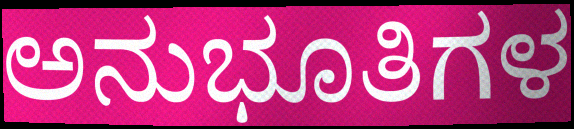
ಅನುಭೂತಿಗಳ